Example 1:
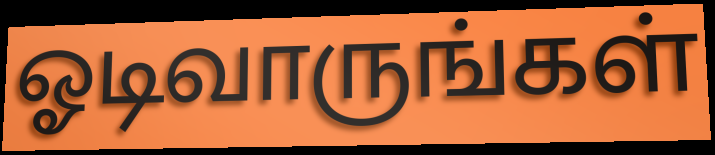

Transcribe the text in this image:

ஓடிவாருங்கள்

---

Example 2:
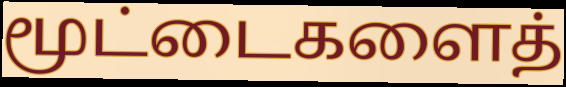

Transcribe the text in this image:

மூட்டைகளைத்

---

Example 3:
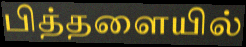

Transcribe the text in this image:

பித்தளையில்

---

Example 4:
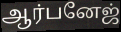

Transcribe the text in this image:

ஆர்பனேஜ்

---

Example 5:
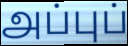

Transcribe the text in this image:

அப்புப்